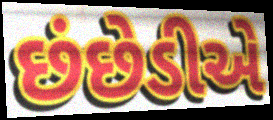
છંછેડીએ